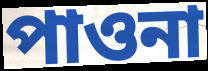
পাওনা